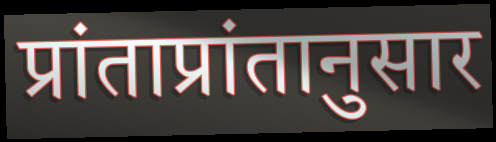
प्रांताप्रांतानुसार